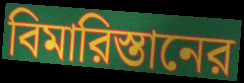
বিমারিস্তানের